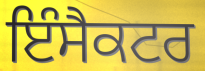
ਇੰਸੈਕਟਰ